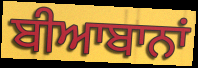
ਬੀਆਬਾਨਾਂ